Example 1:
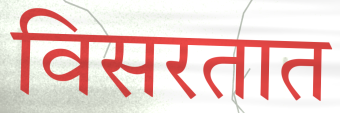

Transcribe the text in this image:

विसरतात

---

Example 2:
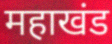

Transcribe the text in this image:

महाखंड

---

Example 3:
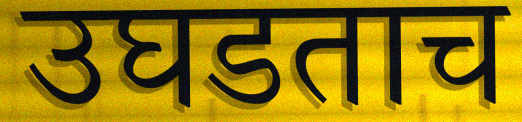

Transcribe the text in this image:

उघडताच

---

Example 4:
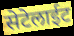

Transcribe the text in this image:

सेटेलाईट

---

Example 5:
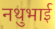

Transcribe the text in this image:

नथुभाई